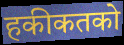
हकीकतको